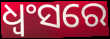
ଧ୍ୱଂସରେ